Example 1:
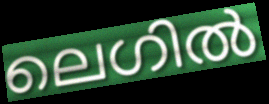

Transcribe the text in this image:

ലെഗിൽ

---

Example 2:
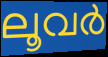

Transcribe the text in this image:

ലൂവർ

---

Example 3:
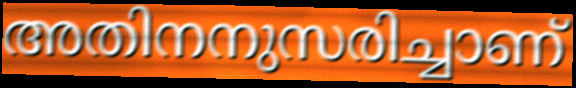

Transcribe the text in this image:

അതിനനുസരിച്ചാണ്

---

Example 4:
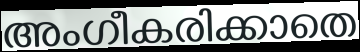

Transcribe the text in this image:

അംഗീകരിക്കാതെ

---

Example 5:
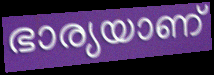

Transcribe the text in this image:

ഭാര്യയാണ്